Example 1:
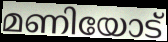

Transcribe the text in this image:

മണിയോട്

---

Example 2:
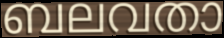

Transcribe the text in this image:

ബലവതാ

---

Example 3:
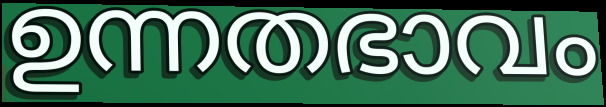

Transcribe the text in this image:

ഉന്നതഭാവം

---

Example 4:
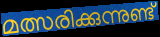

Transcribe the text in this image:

മത്സരിക്കുന്നുണ്ട്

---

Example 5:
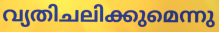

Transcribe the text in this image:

വ്യതിചലിക്കുമെന്നു